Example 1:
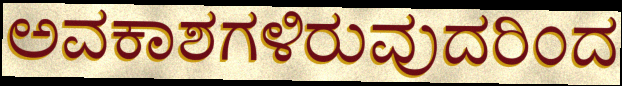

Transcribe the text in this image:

ಅವಕಾಶಗಳಿರುವುದರಿಂದ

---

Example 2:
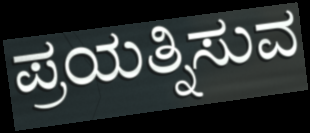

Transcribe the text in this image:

ಪ್ರಯತ್ನಿಸುವ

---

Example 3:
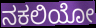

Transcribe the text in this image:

ನಕಲಿಯೋ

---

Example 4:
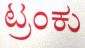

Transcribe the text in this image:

ಟ್ರಂಕು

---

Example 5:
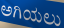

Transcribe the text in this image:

ಅಗಿಯಲು